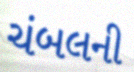
ચંબલની